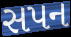
સપન